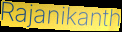
Rajanikanth